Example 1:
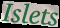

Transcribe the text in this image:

Islets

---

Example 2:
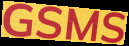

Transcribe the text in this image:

GSMS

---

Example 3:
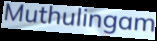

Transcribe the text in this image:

Muthulingam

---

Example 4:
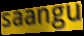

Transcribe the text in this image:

saangu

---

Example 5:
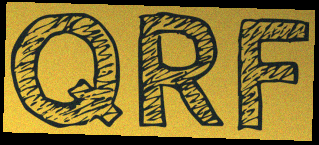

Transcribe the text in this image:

QRF